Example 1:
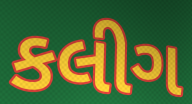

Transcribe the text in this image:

કલીગ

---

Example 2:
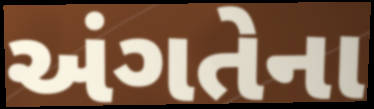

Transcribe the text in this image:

અંગતેના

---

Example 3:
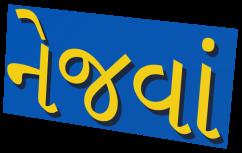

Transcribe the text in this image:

નેજવાં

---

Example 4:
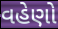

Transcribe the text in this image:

વહેણો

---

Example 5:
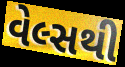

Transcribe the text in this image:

વેલ્સથી